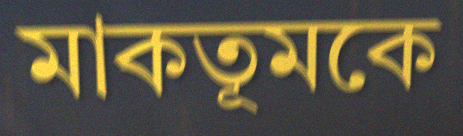
মাকতূমকে